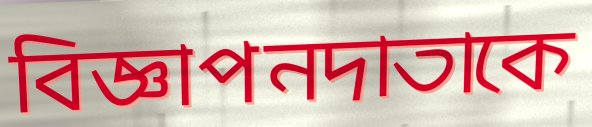
বিজ্ঞাপনদাতাকে